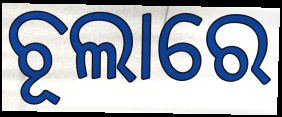
ଚୂଲାରେ